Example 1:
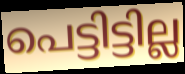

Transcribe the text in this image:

പെട്ടിട്ടില്ല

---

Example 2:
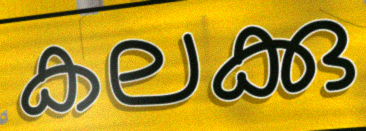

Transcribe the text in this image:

കലക്കു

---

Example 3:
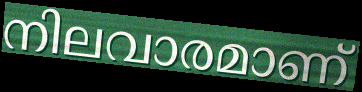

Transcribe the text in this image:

നിലവാരമാണ്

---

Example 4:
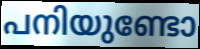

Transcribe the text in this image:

പനിയുണ്ടോ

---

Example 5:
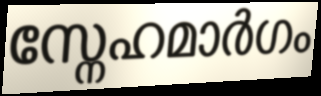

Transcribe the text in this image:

സ്നേഹമാർഗം